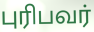
புரிபவர்